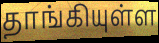
தாங்கியுள்ள